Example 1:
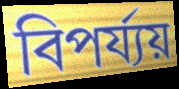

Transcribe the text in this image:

বিপৰ্য্যয়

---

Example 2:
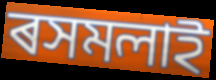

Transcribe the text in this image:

ৰসমলাই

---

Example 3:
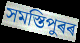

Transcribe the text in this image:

সমস্তিপুৰৰ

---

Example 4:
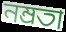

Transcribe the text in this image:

নম্ৰতা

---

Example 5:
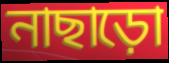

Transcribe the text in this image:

নাছাড়ো